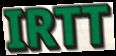
IRTT